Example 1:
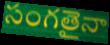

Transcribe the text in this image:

సంగతైనా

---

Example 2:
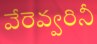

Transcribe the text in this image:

వేరెవ్వరినీ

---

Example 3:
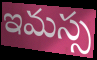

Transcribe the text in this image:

ఇమస్స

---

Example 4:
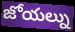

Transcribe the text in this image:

జోయల్ను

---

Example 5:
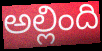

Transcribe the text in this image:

అల్లింది